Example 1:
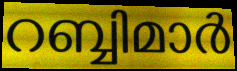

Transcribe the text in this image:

റബ്ബിമാർ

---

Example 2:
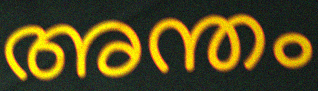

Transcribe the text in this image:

അന്തം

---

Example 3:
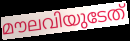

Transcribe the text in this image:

മൗലവിയുടേത്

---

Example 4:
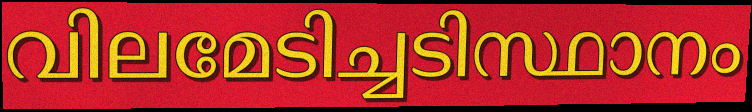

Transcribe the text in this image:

വിലമേടിച്ചടിസ്ഥാനം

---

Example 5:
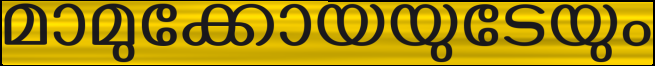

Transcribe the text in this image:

മാമുക്കോയയുടേയും